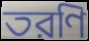
তরণি